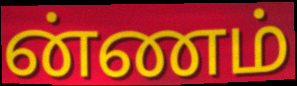
ன்ணம்